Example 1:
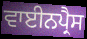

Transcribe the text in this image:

ਵਾਈਨਪ੍ਰੈਸ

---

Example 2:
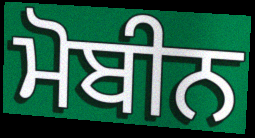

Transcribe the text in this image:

ਮੋਬੀਨ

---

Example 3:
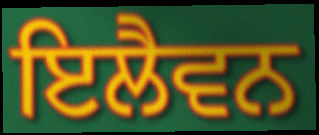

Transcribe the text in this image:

ਇਲੈਵਨ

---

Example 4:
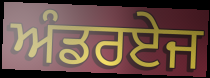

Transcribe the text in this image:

ਅੰਡਰਏਜ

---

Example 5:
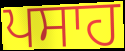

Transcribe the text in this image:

ਪਸਾਹ